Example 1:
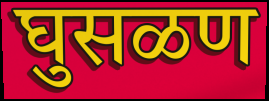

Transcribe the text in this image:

घुसळण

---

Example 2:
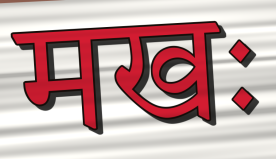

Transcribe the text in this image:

मखः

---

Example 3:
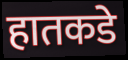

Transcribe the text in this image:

हातकडे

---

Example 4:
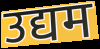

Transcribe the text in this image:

उद्यम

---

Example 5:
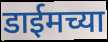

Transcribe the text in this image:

डाईमच्या